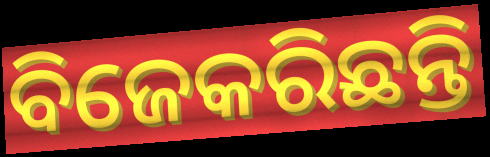
ବିଜେକରିଛନ୍ତି